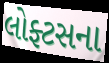
લોફ્ટસના